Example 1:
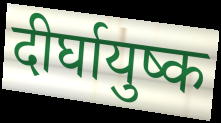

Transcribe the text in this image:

दीर्घायुष्क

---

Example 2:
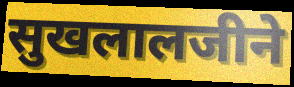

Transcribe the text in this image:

सुखलालजीने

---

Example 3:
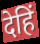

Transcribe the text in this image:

देहिं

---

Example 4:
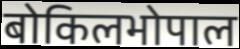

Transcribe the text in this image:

बोकिलभोपाल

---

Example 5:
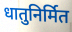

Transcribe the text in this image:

धातुनिर्मित